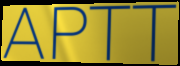
APTT